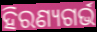
ହିରଣ୍ୟଗର୍ଭ